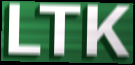
LTK